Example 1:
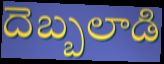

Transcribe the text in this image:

దెబ్బలాడి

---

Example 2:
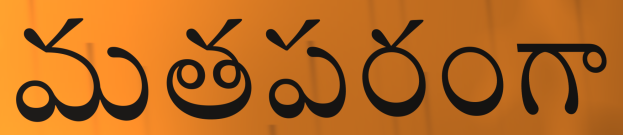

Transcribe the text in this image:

మతపరంగా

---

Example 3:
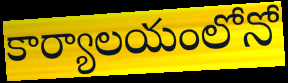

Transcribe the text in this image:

కార్యాలయంలోనో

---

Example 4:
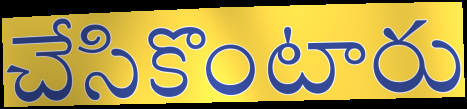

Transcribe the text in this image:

చేసికొంటారు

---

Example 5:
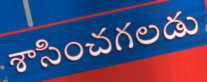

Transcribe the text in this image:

శాసించగలడు